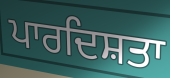
ਪਾਰਦਿਸ਼ਤਾ